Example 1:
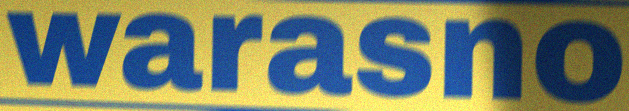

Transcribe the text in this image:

warasno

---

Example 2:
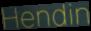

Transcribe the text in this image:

Hendin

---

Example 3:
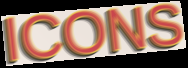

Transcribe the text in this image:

ICONS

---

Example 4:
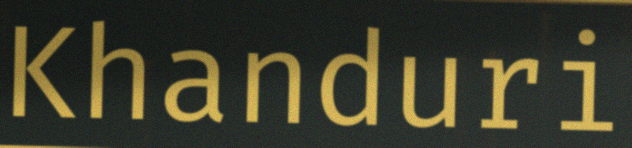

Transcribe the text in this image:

Khanduri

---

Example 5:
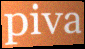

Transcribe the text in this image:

piva